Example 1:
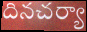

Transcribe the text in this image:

దినచర్యా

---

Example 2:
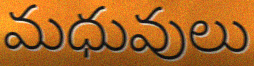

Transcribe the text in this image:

మధువులు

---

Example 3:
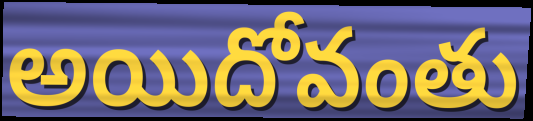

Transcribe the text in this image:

అయిదోవంతు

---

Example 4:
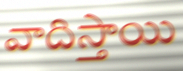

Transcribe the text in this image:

వాదిస్తాయి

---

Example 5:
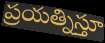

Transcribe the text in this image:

ప్రయత్నిస్తూ